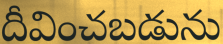
దీవించబడును